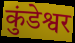
कुंडेश्वर